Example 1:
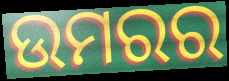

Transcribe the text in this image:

ଉମରର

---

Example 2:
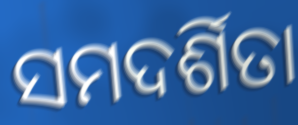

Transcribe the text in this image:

ସମଦର୍ଶିତା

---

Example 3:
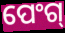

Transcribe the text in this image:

ପେଂଗ୍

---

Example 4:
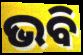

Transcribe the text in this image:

ଭବି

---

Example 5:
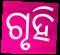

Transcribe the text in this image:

ଗୃହି